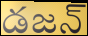
డజన్